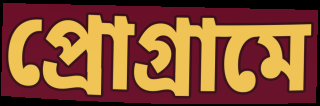
প্রোগ্রামে